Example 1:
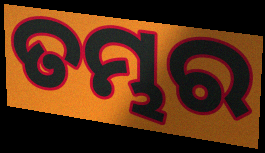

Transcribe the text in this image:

ତମ୍ଭର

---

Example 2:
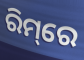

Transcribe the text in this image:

ରିମ୍‌ରେ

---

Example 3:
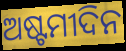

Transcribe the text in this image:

ଅଷ୍ଟମୀଦିନ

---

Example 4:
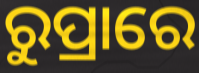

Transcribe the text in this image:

ରୁପ୍ରାରେ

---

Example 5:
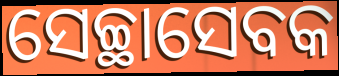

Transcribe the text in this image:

ସେଚ୍ଛାସେବକ